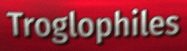
Troglophiles